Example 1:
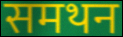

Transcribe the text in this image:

समथन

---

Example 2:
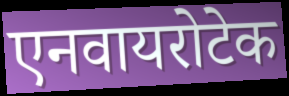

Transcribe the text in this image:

एनवायरोटेक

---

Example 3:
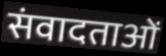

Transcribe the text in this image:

संवादताओं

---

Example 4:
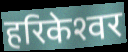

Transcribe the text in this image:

हरिकेश्वर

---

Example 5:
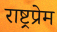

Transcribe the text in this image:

राष्ट्रप्रेम